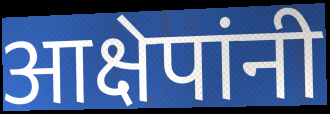
आक्षेपांनी